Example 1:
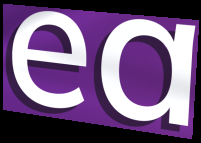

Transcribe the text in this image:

ea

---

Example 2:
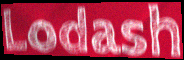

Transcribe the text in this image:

Lodash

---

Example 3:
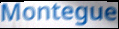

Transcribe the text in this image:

Montegue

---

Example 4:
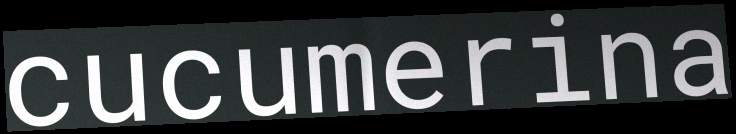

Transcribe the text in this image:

cucumerina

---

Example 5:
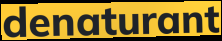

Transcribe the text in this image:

denaturant